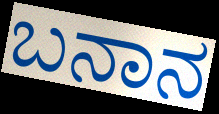
ಬನಾನ